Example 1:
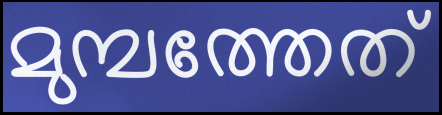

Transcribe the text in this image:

മുമ്പത്തേത്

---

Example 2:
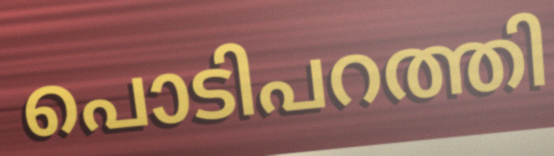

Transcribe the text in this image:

പൊടിപറത്തി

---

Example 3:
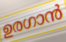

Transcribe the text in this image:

ഉരഗാൻ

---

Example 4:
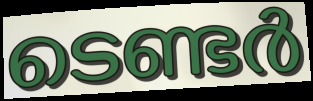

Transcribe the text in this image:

ടെണ്ടർ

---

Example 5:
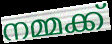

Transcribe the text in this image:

നമ്മക്ക്